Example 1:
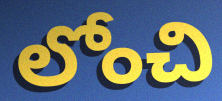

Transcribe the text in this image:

లోంచి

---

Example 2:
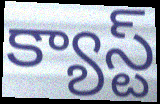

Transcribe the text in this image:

క్యాస్ట్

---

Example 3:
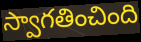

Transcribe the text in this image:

స్వాగతించింది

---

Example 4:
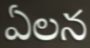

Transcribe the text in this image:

ఏలన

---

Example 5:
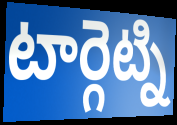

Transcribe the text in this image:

టార్గెట్ని